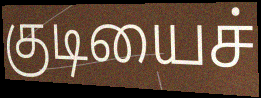
குடியைச்